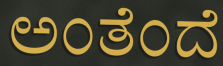
ಅಂತೆಂದೆ